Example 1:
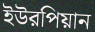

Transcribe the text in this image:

ইউরপিয়ান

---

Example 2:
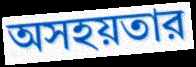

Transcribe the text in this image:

অসহয়তার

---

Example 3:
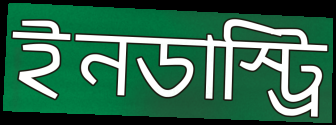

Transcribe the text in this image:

ইনডাস্ট্রি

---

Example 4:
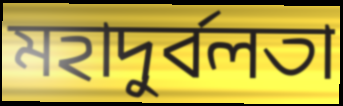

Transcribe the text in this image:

মহাদুর্বলতা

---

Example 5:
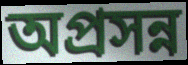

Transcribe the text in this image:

অপ্রসন্ন